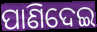
ପାଣିଦେଇ